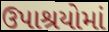
ઉપાશ્રયોમાં